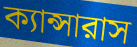
ক্যান্সারাস